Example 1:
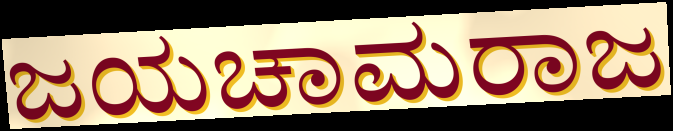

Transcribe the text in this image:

ಜಯಚಾಮರಾಜ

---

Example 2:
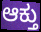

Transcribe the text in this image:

ಆಕ್ತು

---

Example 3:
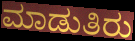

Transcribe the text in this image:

ಮಾಡುತಿರು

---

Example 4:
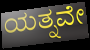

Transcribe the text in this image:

ಯತ್ನವೇ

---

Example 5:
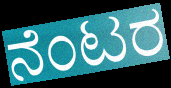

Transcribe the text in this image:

ನೆಂಟರ